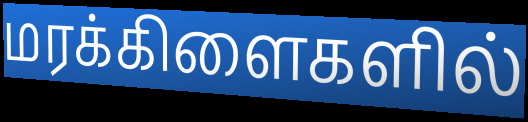
மரக்கிளைகளில்